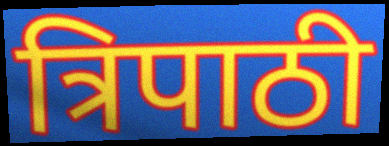
त्रिपाठी